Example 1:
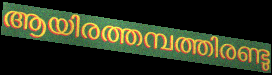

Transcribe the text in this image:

ആയിരത്തമ്പത്തിരണ്ടു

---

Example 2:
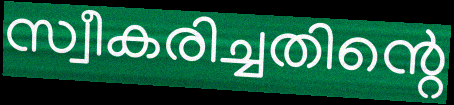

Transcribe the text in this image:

സ്വീകരിച്ചതിന്റെ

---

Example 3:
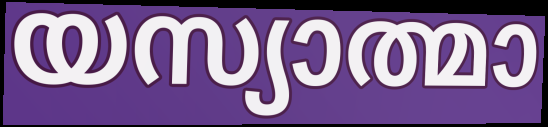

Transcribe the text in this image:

യസ്യാത്മാ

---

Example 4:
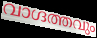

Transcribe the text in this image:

വാഗ്ദത്തവും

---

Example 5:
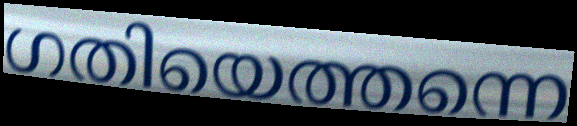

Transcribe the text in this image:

ഗതിയെത്തന്നെ